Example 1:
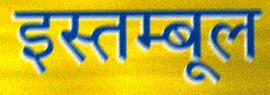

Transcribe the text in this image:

इस्तम्बूल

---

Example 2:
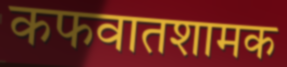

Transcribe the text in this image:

कफवातशामक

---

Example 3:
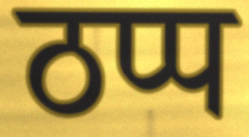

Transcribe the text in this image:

ठप्प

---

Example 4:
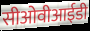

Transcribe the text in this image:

सीओवीआईडी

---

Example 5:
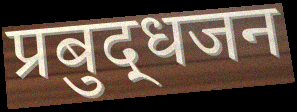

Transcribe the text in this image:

प्रबुद्धजन